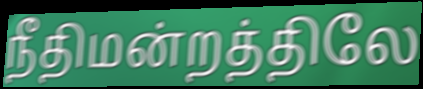
நீதிமன்றத்திலே